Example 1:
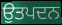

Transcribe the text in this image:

ਉਤਪਦਨ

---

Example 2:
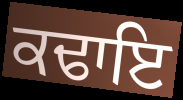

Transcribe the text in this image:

ਕਢਾਇ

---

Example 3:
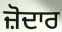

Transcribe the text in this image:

ਜ਼ੋਦਾਰ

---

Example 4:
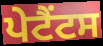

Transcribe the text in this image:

ਪੇਟੈਂਟਸ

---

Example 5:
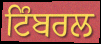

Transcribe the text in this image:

ਟਿੰਬਰਲ